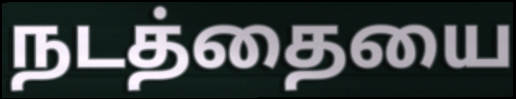
நடத்தையை